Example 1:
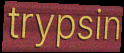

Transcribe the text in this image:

trypsin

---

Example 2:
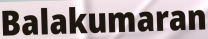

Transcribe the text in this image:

Balakumaran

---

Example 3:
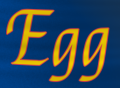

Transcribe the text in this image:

Egg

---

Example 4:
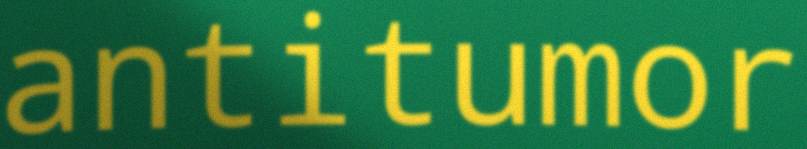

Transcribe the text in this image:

antitumor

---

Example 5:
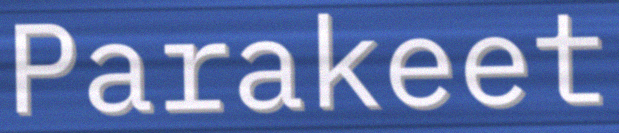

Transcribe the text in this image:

Parakeet